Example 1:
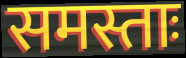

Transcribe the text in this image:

समस्ताः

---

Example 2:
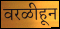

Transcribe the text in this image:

वरळीहून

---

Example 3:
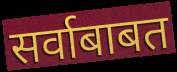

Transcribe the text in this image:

सर्वाबाबत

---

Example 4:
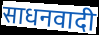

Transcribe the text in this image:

साधनवादी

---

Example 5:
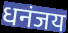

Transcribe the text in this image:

धनंजय